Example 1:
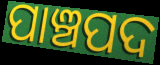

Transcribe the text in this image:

ପାଞ୍ଚପଦ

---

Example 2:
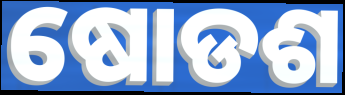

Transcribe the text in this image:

ଷୋଡଶ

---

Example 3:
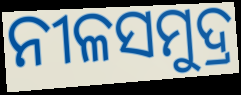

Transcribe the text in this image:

ନୀଳସମୁଦ୍ର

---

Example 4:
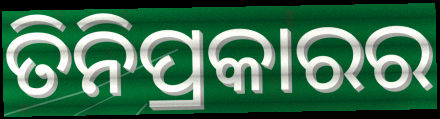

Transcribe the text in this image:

ତିନିପ୍ରକାରର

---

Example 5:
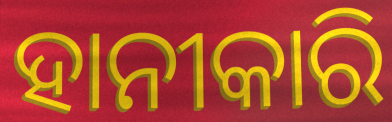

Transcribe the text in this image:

ହାନୀକାରି